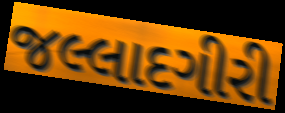
જલ્લાદગીરી